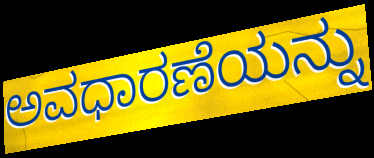
ಅವಧಾರಣೆಯನ್ನು